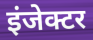
इंजेक्टर